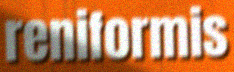
reniformis